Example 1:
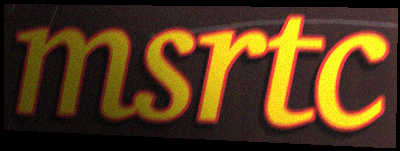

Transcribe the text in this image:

msrtc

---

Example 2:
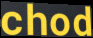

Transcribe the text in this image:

chod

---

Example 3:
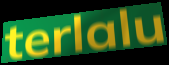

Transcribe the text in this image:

terlalu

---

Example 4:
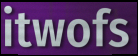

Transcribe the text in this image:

itwofs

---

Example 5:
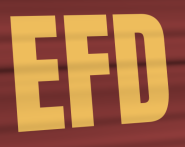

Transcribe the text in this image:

EFD